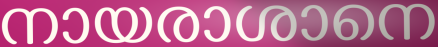
നായരാശാനെ